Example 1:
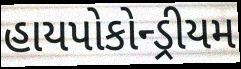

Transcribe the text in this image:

હાયપોકોન્ડ્રીયમ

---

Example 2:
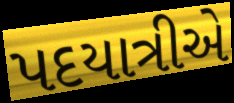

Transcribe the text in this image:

પદયાત્રીએ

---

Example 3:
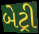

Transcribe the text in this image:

બેટ્રી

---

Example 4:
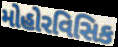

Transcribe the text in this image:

મોહોરવિસિક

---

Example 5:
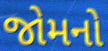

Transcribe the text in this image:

જોમનો